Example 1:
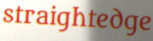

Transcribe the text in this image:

straightedge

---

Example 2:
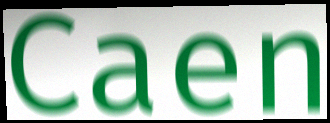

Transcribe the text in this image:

Caen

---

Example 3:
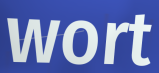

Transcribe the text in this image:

wort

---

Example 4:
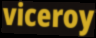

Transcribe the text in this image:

viceroy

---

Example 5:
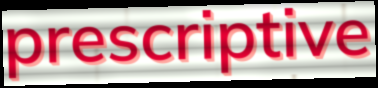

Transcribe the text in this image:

prescriptive